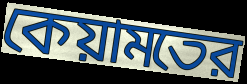
কেয়ামতের